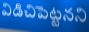
విడిచిపెట్టనని